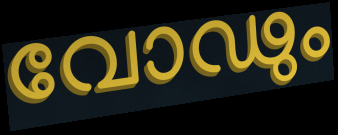
വോഢും